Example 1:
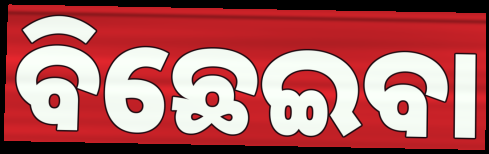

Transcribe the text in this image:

ବିଛେଇବା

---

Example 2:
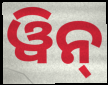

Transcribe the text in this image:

ୱିନ୍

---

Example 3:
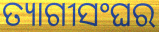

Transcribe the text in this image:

ତ୍ୟାଗୀସଂଘର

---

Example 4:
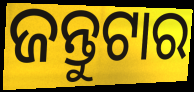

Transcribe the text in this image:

ଜନ୍ତୁଟାର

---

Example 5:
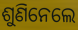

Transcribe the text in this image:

ଶୁଣିନେଲେ